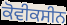
ਕੋਵੀਕਸੀਨ